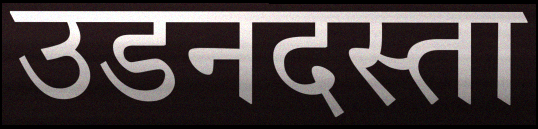
उडनदस्ता